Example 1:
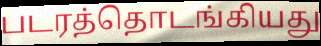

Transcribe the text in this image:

படரத்தொடங்கியது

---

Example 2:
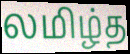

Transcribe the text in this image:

லமிழ்த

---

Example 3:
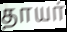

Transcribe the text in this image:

தாயர்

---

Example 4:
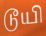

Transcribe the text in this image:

டூயி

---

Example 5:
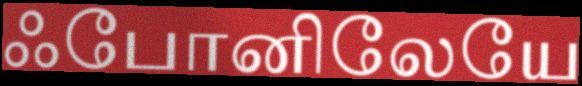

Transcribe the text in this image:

ஃபோனிலேயே